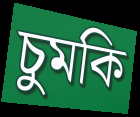
চুমকি